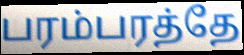
பரம்பரத்தே